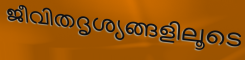
ജീവിതദൃശ്യങ്ങളിലൂടെ